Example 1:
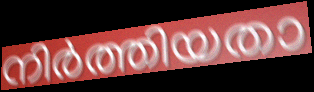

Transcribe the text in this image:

നിർത്തിയതാ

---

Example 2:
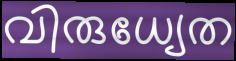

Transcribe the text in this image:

വിരുധ്യേത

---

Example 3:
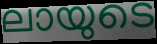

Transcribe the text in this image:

ലായുടെ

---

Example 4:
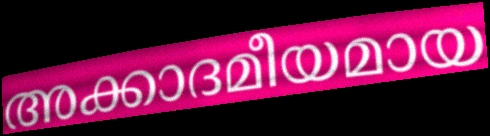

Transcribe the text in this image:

അക്കാദമീയമായ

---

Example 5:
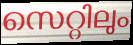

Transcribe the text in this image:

സെറ്റിലും